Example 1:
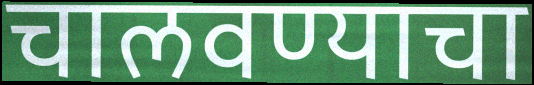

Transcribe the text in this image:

चालवण्याचा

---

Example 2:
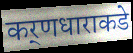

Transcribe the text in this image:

कर्णधाराकडे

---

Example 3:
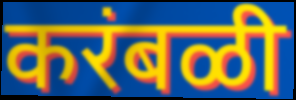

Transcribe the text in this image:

करंबळी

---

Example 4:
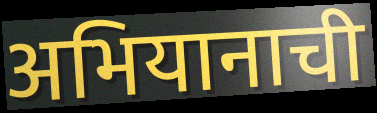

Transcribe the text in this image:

अभियानाची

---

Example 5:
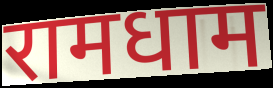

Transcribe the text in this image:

रामधाम